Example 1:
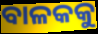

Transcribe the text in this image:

ବାଳକକୁ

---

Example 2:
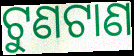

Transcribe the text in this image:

ଟୁଣଟାଣ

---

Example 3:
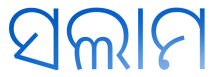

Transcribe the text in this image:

ସଲାମ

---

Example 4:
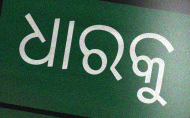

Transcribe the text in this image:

ଧାରକୁ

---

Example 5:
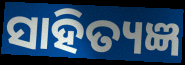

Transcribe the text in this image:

ସାହିତ୍ୟଜ୍ଞ